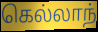
கெல்லாந்